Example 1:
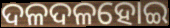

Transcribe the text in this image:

ଦଳଦଳହୋଇ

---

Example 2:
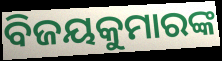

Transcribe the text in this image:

ବିଜୟକୁମାରଙ୍କ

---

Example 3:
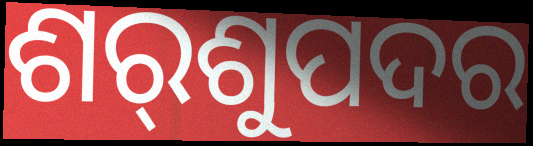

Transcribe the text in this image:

ଶର୍‌ଶୁପଦର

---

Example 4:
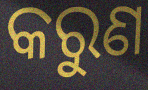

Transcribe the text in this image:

କରୁଣ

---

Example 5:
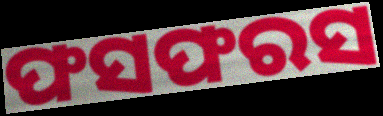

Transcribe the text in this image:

ଫସଫରସ